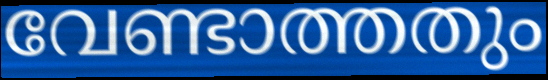
വേണ്ടാത്തതും